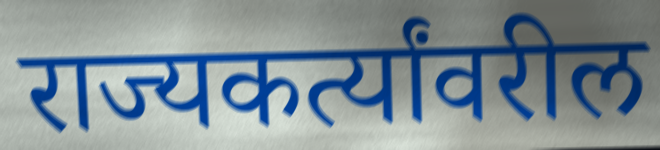
राज्यकर्त्यांवरील